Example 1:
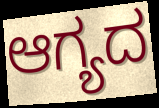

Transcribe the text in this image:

ಆಗ್ಯದ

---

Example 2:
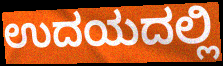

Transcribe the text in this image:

ಉದಯದಲ್ಲಿ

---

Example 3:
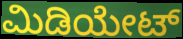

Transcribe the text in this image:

ಮಿಡಿಯೇಟ್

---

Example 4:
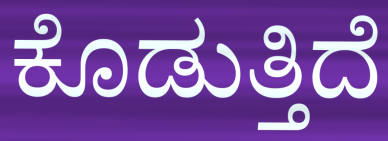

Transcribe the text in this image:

ಕೊಡುತ್ತಿದೆ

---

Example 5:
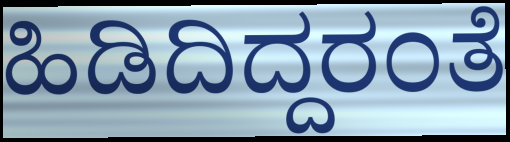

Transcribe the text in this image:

ಹಿಡಿದಿದ್ದರಂತೆ